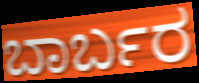
ಬಾರ್ಬರ